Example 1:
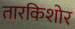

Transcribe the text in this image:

तारकिशोर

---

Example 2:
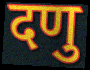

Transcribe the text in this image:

दणु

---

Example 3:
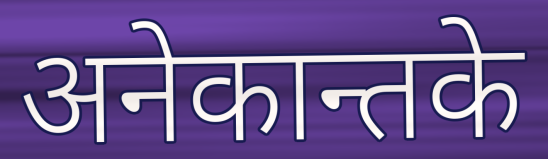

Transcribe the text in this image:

अनेकान्तके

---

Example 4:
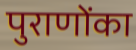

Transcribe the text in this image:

पुराणोंका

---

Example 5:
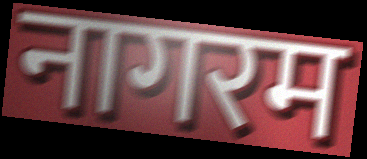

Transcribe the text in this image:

नागरम